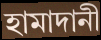
হামাদানী